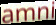
amni